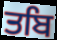
ਤਬਿ